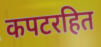
कपटरहित